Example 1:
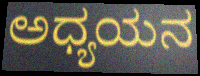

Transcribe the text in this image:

ಅಧ್ಯಯನ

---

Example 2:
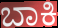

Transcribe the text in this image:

ಬಾಕಿ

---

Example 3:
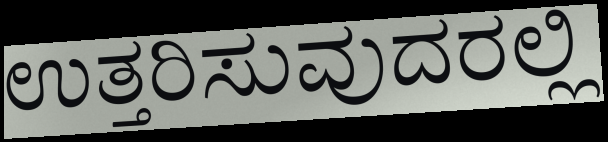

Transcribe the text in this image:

ಉತ್ತರಿಸುವುದರಲ್ಲಿ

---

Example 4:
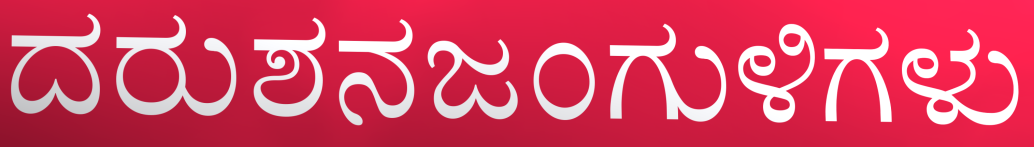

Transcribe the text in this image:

ದರುಶನಜಂಗುಳಿಗಳು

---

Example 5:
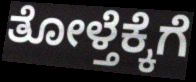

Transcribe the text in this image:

ತೋಳ್ತೆಕ್ಕೆಗೆ